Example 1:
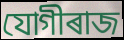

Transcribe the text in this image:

যোগীৰাজ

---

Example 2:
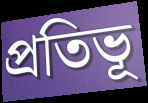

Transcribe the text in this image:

প্ৰতিভূ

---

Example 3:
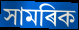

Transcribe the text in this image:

সামৰিক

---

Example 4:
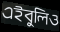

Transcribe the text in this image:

এইবুলিও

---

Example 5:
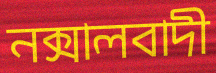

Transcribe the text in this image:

নক্সালবাদী